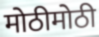
मोठीमोठी